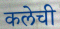
कलेची